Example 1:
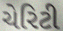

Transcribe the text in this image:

ચેરિટી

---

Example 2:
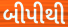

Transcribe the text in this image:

બીપીથી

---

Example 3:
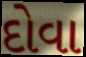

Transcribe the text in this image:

દોવા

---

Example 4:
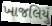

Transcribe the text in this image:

ખાજલિયું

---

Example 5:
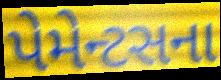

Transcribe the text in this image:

પેમેન્ટસના